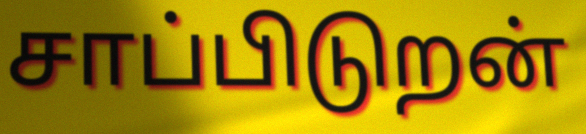
சாப்பிடுறன்